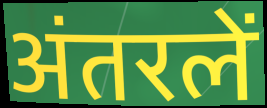
अंतरलें